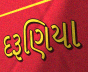
દરૂણિયા